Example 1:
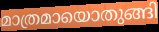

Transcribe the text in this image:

മാത്രമായൊതുങ്ങി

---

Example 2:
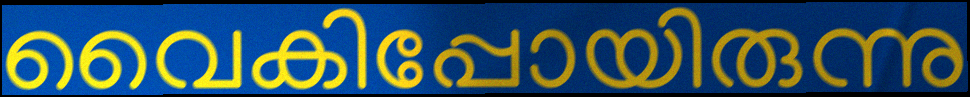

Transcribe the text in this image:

വൈകിപ്പോയിരുന്നു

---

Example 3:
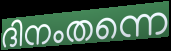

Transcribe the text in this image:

ദിനംതന്നെ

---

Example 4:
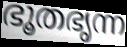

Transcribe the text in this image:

ഭൂതഭൃന്ന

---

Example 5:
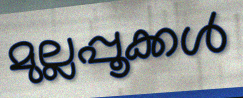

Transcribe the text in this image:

മുല്ലപ്പൂക്കൾ